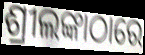
ଶ୍ରୀଲଙ୍କାଠାରେ